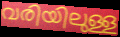
വരിയിലുള്ള